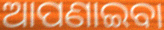
ଆପଣାଇବା